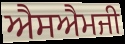
ਐਸਐਮਜੀ